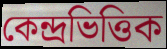
কেন্দ্রভিত্তিক